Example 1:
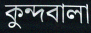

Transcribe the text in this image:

কুন্দবালা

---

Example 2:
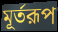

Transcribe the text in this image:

মূর্তরূপ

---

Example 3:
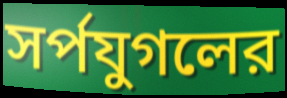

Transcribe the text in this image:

সর্পযুগলের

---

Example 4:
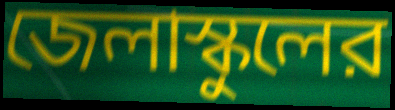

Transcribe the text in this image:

জেলাস্কুলের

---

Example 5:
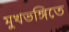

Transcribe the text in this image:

মুখভঙ্গিতে